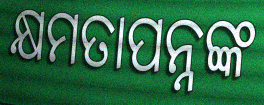
କ୍ଷମତାପନ୍ନଙ୍କ